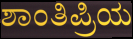
ಶಾಂತಿಪ್ರಿಯ